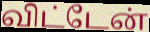
விட்டேன்